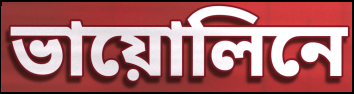
ভায়োলিনে